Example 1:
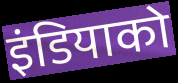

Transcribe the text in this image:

इंडियाको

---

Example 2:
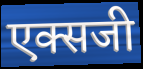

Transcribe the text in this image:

एक्सजी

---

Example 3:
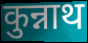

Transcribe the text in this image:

कुन्नाथ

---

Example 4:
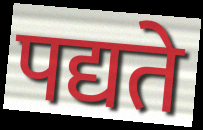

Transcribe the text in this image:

पद्यते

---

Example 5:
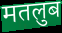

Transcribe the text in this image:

मतलुब